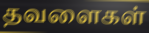
தவளைகள்